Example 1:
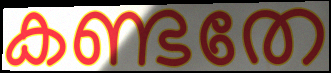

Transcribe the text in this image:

കണ്ടതേ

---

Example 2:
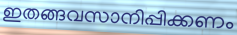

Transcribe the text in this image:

ഇതങ്ങവസാനിപ്പിക്കണം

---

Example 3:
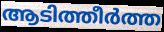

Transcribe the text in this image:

ആടിത്തീർത്ത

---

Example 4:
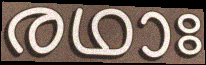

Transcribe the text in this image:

രഥാഃ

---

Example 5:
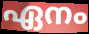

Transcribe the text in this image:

ഏനം